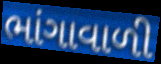
ભાંગાવાળી